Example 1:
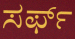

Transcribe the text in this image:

ಸರ್ಫ್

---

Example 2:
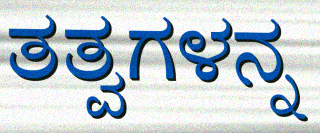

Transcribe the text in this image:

ತತ್ವಗಳನ್ನ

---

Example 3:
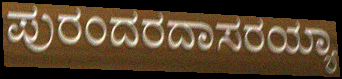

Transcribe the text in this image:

ಪುರಂದರದಾಸರಯ್ಯಾ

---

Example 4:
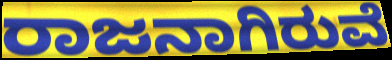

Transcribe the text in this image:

ರಾಜನಾಗಿರುವೆ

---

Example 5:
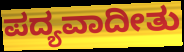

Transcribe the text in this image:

ಪದ್ಯವಾದೀತು